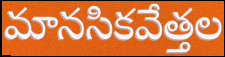
మానసికవేత్తల